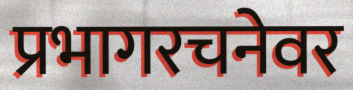
प्रभागरचनेवर